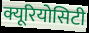
क्यूरियोसिटी